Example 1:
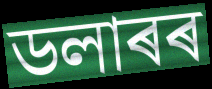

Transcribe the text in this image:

ডলাৰৰ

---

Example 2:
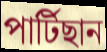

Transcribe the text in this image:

পাৰ্টিছান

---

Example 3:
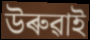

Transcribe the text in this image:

উৰুৱাই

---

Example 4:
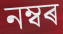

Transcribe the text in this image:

নম্বৰ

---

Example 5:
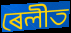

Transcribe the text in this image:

ৰেলীত